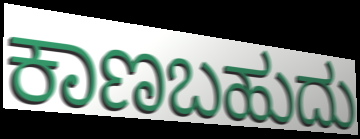
ಕಾಣಬಹುದು